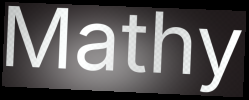
Mathy